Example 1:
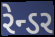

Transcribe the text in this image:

રેન્ડર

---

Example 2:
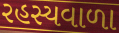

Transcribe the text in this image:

રહસ્યવાળા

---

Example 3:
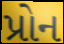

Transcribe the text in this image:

પ્રોન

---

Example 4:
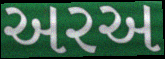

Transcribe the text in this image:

અરઅ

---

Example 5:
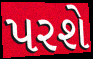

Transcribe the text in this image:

પરશે